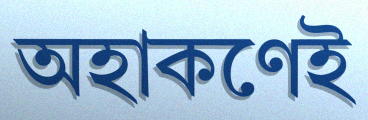
অহাকণেই